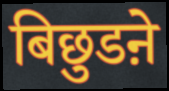
बिछुडऩे